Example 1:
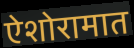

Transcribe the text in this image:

ऐशोरामात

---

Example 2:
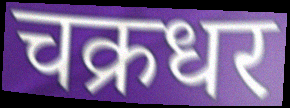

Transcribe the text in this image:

चक्रधर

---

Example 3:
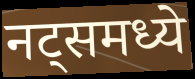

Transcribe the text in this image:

नट्समध्ये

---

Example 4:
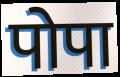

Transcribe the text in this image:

पोपा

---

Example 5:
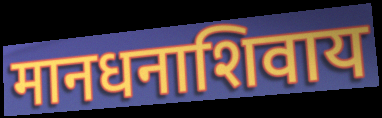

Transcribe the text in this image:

मानधनाशिवाय